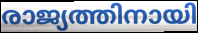
രാജ്യത്തിനായി